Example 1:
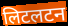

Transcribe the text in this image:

लिटलटन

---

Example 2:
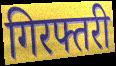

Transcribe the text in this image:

गिरफ्तरी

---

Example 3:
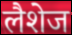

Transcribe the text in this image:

लैशेज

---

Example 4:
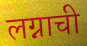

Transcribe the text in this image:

लग्नाची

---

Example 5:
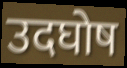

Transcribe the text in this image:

उदघोष